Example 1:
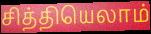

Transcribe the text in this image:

சித்தியெலாம்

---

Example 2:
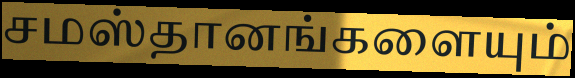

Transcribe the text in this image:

சமஸ்தானங்களையும்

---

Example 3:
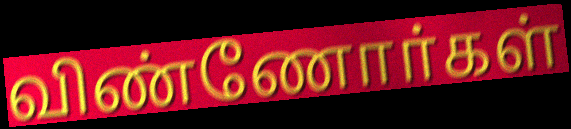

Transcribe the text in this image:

விண்ணோர்கள்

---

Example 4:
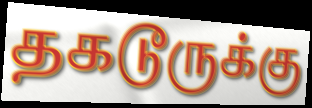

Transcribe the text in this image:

தகடூருக்கு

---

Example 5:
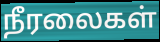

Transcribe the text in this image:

நீரலைகள்